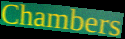
Chambers